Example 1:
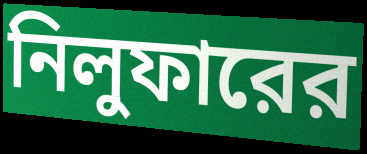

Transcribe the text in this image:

নিলুফারের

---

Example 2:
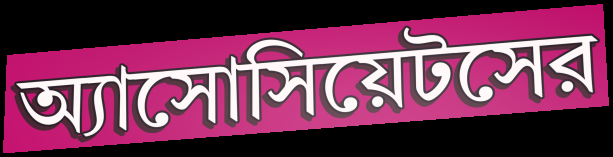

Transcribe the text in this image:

অ্যাসোসিয়েটসের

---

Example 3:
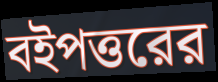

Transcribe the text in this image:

বইপত্তরের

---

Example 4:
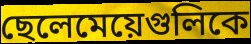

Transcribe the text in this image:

ছেলেমেয়েগুলিকে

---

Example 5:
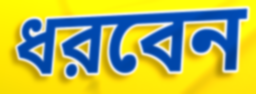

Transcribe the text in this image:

ধরবেন